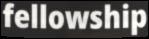
fellowship